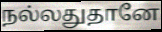
நல்லதுதானே